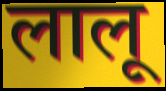
लालू